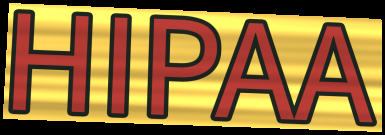
HIPAA